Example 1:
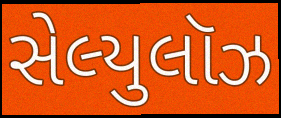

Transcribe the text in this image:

સેલ્યુલૉઝ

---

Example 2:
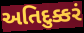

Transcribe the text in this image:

અતિદુક્કરં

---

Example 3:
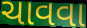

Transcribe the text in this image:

ચાવવા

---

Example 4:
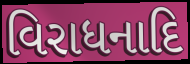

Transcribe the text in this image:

વિરાધનાદિ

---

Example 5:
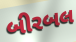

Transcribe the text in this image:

બીરબલ